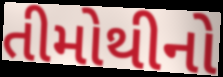
તીમોથીનો